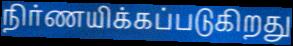
நிர்ணயிக்கப்படுகிறது